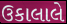
ઉકાલાલે